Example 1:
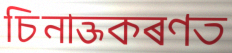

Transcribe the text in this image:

চিনাক্তকৰণত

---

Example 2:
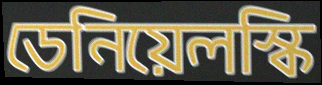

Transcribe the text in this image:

ডেনিয়েলস্কি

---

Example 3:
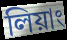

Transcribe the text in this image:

লিয়াং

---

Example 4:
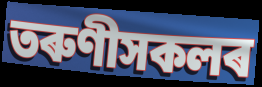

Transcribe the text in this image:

তৰুণীসকলৰ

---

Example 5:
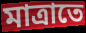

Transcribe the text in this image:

মাত্ৰাতে